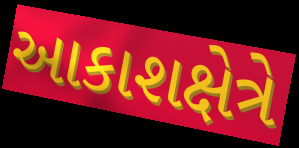
આકાશક્ષેત્રે